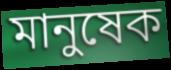
মানুষেক